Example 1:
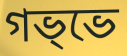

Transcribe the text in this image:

গভ্ভে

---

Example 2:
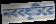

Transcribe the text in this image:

নববধূটিরে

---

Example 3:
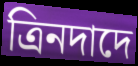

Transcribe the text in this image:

ত্রিনদাদে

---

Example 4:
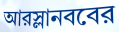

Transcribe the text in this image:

আরস্লানববের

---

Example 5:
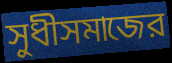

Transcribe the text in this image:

সুধীসমাজের